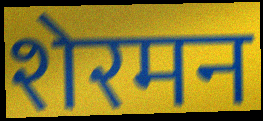
शेरमन